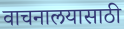
वाचनालयासाठी